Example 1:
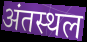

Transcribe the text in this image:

अंतस्थल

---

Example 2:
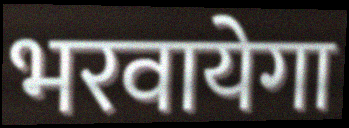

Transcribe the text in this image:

भरवायेगा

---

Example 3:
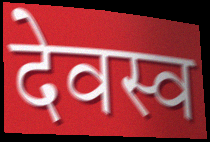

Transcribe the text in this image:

देवस्व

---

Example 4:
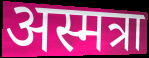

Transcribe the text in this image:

अस्मत्रा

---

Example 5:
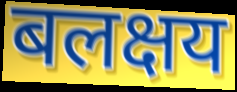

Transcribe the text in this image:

बलक्षय